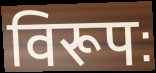
विरूपः